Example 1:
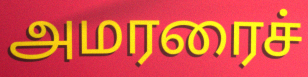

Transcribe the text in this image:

அமரரைச்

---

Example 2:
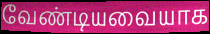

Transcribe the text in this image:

வேண்டியவையாக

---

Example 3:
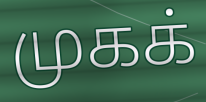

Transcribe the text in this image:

முகக்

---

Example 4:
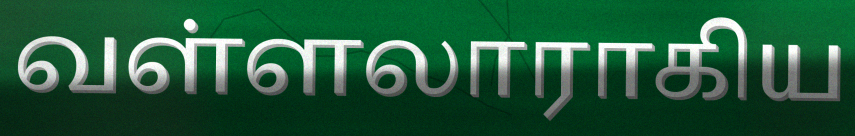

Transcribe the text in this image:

வள்ளலாராகிய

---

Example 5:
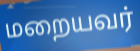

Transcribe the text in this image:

மறையவர்